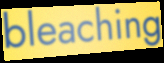
bleaching